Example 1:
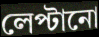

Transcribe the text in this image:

লেপ্টানো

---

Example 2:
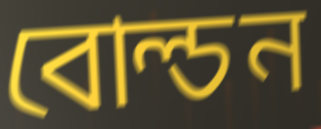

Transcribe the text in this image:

বোল্ডন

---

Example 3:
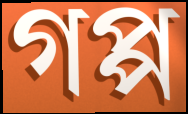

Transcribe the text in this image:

গপ্প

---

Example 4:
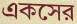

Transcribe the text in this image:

একসের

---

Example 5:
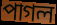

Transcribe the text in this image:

পাগল